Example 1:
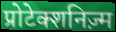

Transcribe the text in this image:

प्रोटेक्शनिज़्म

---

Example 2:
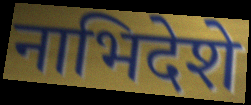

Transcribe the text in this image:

नाभिदेशे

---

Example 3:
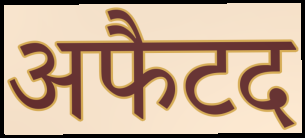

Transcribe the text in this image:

अफैटद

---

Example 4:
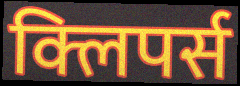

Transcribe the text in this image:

क्लिपर्स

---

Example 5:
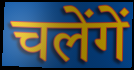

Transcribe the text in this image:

चलेंगें